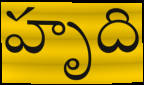
హృది